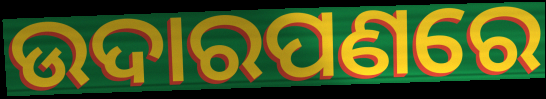
ଉଦାରପଣରେ